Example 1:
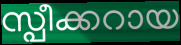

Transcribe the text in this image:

സ്പീക്കറായ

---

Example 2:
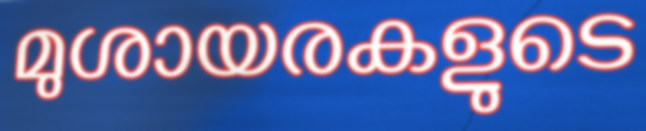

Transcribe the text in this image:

മുശായരകളുടെ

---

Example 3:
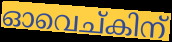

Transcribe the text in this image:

ഓവെച്കിന്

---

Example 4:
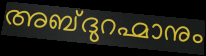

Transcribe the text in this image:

അബ്ദുറഹ്മാനും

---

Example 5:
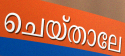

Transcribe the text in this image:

ചെയ്താലേ